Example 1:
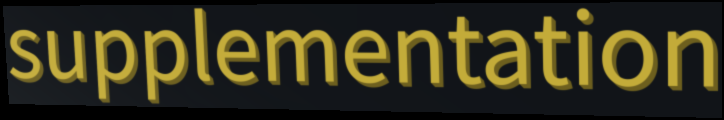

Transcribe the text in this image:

supplementation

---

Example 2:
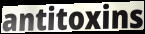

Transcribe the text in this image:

antitoxins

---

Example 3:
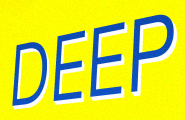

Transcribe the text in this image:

DEEP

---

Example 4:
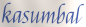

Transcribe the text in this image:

kasumbal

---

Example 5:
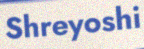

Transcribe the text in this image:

Shreyoshi